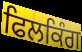
ਫਿਲਕਿੰਗ